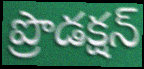
ప్రొడక్షన్